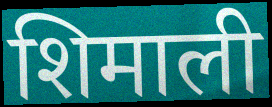
शिमाली